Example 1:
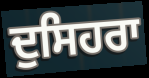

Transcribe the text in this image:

ਦੁਸਿਹਰਾ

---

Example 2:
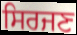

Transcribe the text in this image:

ਸਿਰਜਣ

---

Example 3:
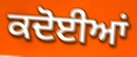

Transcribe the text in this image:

ਕਦੋਈਆਂ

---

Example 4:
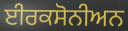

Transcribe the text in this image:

ਈਰਕਸੋਨੀਅਨ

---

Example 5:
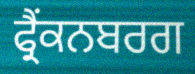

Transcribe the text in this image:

ਫ੍ਰੈਂਕਨਬਰਗ